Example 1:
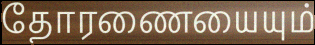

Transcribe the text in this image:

தோரணையையும்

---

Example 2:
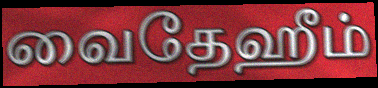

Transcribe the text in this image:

வைதேஹீம்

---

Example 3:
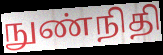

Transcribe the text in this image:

நுண்நிதி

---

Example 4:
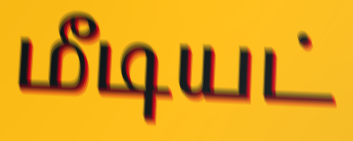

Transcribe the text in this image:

மீடியட்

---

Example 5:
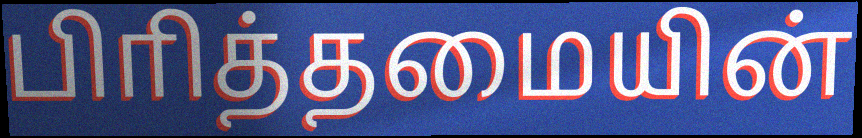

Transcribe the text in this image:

பிரித்தமையின்